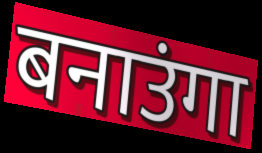
बनाउंगा